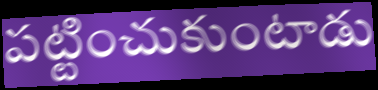
పట్టించుకుంటాడు